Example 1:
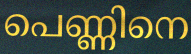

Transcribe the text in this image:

പെണ്ണിനെ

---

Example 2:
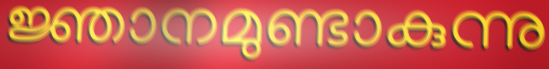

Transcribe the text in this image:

ജ്ഞാനമുണ്ടാകുന്നു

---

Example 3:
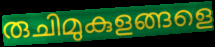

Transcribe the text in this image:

രുചിമുകുളങ്ങളെ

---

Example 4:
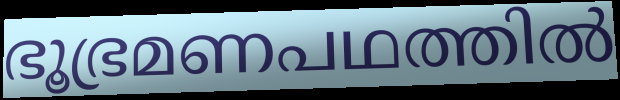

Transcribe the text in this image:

ഭൂഭ്രമണപഥത്തിൽ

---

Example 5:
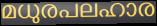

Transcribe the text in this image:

മധുരപലഹാര